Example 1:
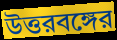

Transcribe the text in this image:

উত্তরবঙ্গের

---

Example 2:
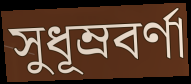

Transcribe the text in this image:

সুধূম্রবর্ণা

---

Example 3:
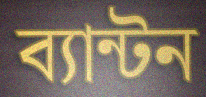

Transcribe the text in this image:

ব্যান্টন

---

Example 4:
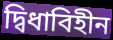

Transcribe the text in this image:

দ্বিধাবিহীন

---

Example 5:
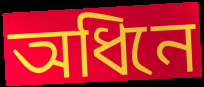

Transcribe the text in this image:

অধিনে